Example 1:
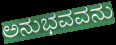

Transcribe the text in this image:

ಅನುಭವವನು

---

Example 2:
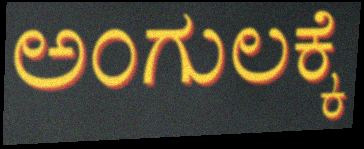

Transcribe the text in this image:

ಅಂಗುಲಕ್ಕೆ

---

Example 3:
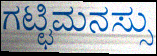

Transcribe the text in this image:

ಗಟ್ಟಿಮನಸ್ಸು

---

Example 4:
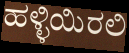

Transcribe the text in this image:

ಹಳ್ಳಿಯಿರಲಿ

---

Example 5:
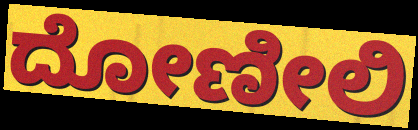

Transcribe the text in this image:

ದೋಣೀಲಿ